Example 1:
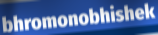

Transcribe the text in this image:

bhromonobhishek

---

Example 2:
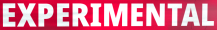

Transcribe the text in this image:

EXPERIMENTAL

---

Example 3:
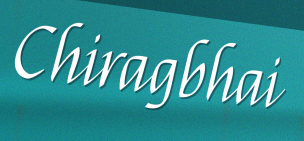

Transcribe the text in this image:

Chiragbhai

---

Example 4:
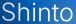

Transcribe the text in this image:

Shinto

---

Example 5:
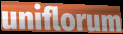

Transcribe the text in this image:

uniflorum